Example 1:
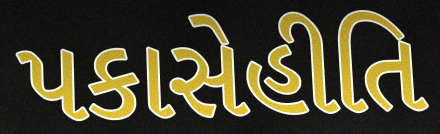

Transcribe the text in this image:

પકાસેહીતિ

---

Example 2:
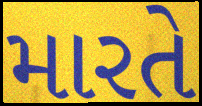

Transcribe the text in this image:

મારતે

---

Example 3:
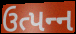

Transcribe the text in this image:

ઉત્પન્‍ન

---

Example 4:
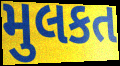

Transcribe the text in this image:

મુલકત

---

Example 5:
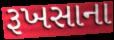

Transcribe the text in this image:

રૂખસાના